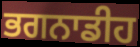
ਭਗਨਾਡੀਹ